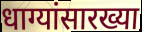
धाग्यांसारख्या